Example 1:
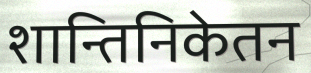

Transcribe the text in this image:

शान्तिनिकेतन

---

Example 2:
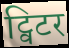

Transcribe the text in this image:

ट्विटर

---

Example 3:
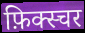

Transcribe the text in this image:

फ़िक्स्चर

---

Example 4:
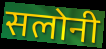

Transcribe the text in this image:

सलोनी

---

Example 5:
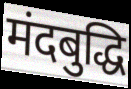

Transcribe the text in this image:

मंदबुद्धि